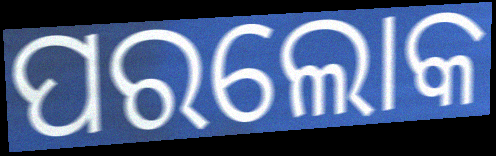
ପରଲୋକ